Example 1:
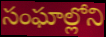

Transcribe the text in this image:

సంఘాల్లోని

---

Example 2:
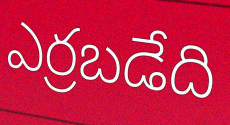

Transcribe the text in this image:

ఎర్రబడేది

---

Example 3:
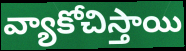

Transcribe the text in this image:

వ్యాకోచిస్తాయి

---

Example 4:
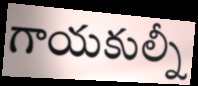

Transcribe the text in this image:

గాయకుల్నీ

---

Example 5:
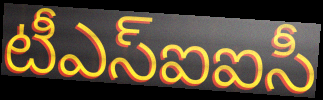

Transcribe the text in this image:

టీఎస్ఐఐసీ